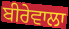
ਬੀਰੇਵਾਲਾ